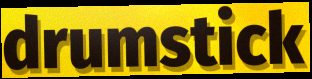
drumstick